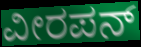
ವೀರಪನ್